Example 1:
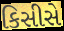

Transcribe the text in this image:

કિસીસે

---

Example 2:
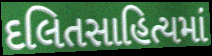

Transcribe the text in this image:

દલિતસાહિત્યમાં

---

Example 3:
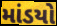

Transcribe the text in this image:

માંડયો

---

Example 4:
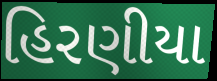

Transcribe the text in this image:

હિરણીયા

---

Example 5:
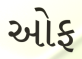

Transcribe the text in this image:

ઓફ